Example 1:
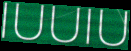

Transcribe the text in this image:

IUUIU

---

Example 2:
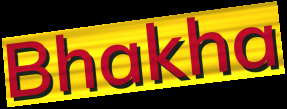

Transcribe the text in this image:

Bhakha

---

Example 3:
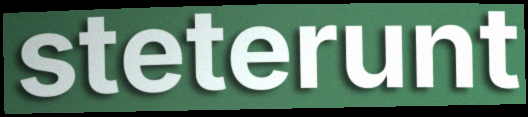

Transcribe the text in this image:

steterunt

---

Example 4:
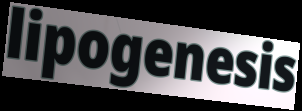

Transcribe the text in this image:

lipogenesis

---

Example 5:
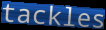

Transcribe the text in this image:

tackles